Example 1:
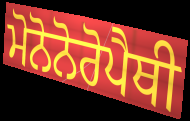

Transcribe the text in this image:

ਮੋਨੋਨੋਰੋਪੈਥੀ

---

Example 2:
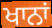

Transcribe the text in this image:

ਖਾਨਾਂ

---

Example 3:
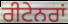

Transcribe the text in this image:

ਰੀਟੇਨਰਾਂ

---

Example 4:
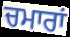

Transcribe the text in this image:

ਚਮਾਰਾਂ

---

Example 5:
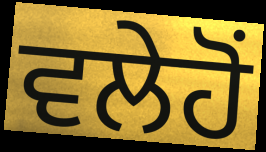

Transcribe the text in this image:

ਵਲੇਹੋਂ